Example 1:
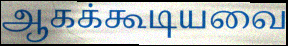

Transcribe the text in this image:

ஆகக்கூடியவை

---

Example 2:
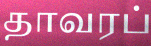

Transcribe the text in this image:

தாவரப்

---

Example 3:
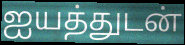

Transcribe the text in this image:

ஐயத்துடன்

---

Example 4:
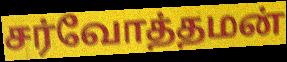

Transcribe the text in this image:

சர்வோத்தமன்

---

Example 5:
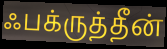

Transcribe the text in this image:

ஃபக்ருத்தீன்